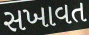
સખાવત